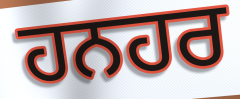
ਹਨਹਰ